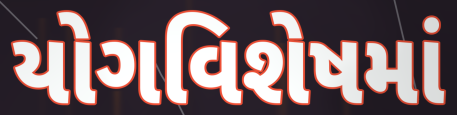
યોગવિશેષમાં